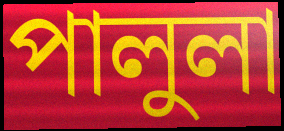
পালুলা